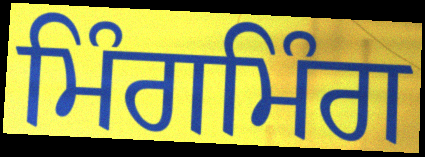
ਮਿੰਗਮਿੰਗ